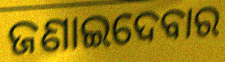
ଜଣାଇଦେବାର